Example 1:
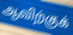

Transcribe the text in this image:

ஆவிற்குக்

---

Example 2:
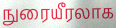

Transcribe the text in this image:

நுரையீரலாக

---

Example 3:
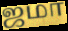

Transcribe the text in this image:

ஜமா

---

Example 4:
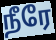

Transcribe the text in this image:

நீரே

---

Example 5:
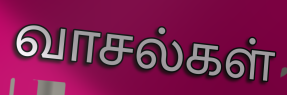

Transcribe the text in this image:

வாசல்கள்